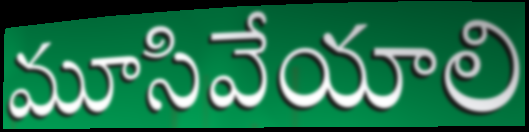
మూసివేయాలి